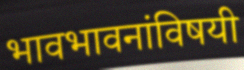
भावभावनांविषयी